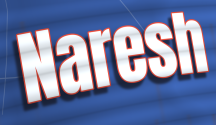
Naresh